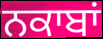
ਨਕਾਬਾਂ